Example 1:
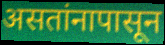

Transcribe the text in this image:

असतांनापासून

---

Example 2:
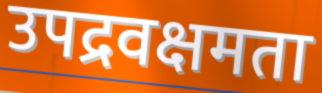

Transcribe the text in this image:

उपद्रवक्षमता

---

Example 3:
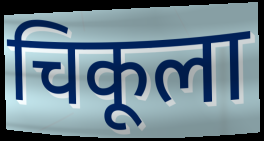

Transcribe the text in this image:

चिकूला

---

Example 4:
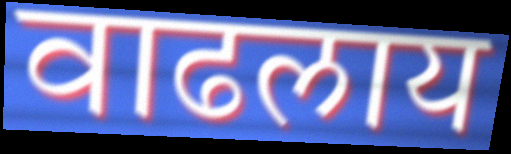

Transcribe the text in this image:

वाढलाय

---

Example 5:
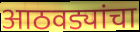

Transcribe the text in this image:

आठवड्यांचा